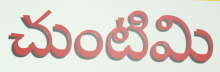
చుంటిమి